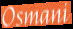
Osmani